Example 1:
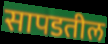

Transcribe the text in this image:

सापडतील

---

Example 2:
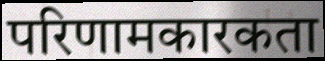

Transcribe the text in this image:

परिणामकारकता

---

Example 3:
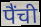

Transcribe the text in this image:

पैंची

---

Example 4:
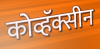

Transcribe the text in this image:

कोव्हॅक्सीन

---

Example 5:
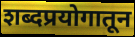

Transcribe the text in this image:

शब्दप्रयोगातून